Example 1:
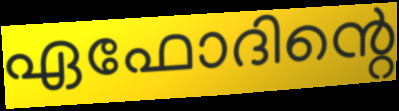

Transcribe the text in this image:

ഏഫോദിന്റെ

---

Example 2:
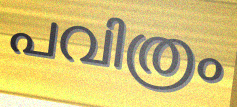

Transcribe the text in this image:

പവിത്രം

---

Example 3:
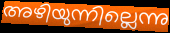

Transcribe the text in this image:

അഴിയുന്നില്ലെന്നു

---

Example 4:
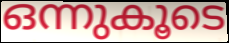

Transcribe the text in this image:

ഒന്നുകൂടെ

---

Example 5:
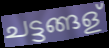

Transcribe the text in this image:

ചട്ടങ്ങള്